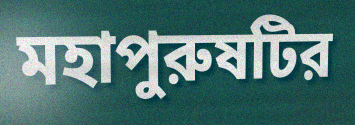
মহাপুরুষটির